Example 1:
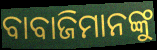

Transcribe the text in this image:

ବାବାଜିମାନଙ୍କୁ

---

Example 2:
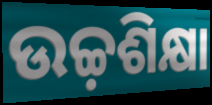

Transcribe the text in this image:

ଉଚ୍ଚ଼ଶିକ୍ଷା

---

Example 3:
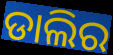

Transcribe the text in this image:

ଡାଲିର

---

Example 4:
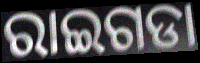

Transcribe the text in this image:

ରାଇଗଡା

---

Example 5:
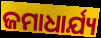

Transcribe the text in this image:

ଜମାଧାର୍ଯ୍ୟ